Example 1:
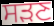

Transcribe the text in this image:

ਸੜਣ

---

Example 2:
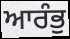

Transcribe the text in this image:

ਆਰੰਭੁ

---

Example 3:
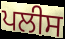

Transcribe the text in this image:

ਪਲੀਸ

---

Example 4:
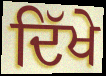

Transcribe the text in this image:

ਦਿੱਖੇ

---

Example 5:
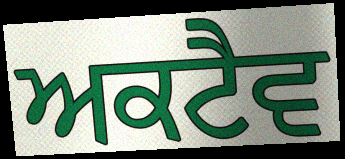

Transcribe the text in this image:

ਅਕਟੈਵ